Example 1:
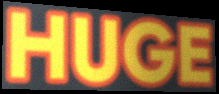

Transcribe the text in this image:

HUGE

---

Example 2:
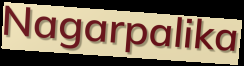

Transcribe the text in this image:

Nagarpalika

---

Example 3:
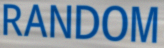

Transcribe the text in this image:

RANDOM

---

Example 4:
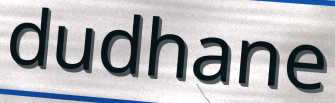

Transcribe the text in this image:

dudhane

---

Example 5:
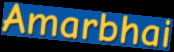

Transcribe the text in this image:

Amarbhai